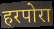
हरपोरा